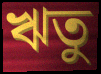
ঋতু